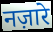
नज़ारे